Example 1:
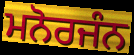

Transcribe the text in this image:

ਮਨੋਰਜੰਨ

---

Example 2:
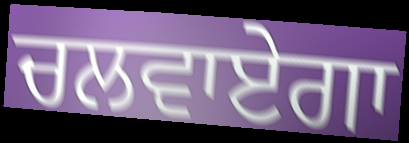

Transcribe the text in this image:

ਚਲਵਾਏਗਾ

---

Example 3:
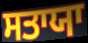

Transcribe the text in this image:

ਸਤਾਯਾ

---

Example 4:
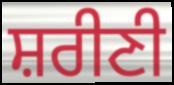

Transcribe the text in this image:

ਸ਼ਰੀਣੀ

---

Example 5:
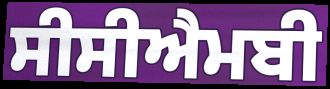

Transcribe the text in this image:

ਸੀਸੀਐਮਬੀ